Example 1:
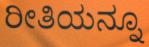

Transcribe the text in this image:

ರೀತಿಯನ್ನೂ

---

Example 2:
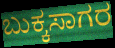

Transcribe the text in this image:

ಬುಕ್ಕಸಾಗರ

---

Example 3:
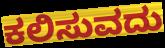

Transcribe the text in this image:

ಕಲಿಸುವದು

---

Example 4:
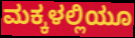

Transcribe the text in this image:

ಮಕ್ಕಳಲ್ಲಿಯೂ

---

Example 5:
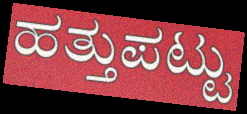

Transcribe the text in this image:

ಹತ್ತುಪಟ್ಟು